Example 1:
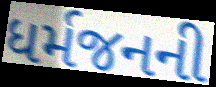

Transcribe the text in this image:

ધર્મજનની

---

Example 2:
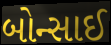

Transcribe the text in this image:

બોન્સાઈ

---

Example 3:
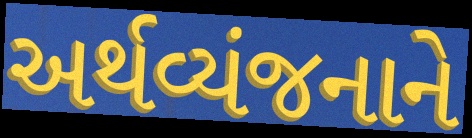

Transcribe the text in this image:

અર્થવ્યંજનાને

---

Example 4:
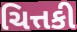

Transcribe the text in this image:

ચિત્તકી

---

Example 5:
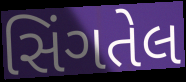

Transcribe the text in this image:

સિંગતેલ